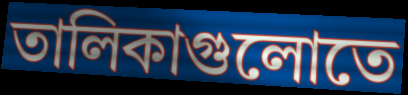
তালিকাগুলোতে